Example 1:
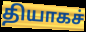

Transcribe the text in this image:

தியாகச்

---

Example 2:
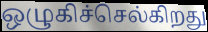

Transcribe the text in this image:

ஒழுகிச்செல்கிறது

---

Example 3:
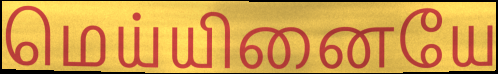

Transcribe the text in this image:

மெய்யினையே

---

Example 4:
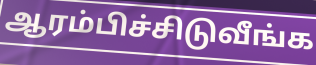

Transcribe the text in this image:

ஆரம்பிச்சிடுவீங்க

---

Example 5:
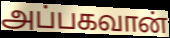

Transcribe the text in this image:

அப்பகவான்